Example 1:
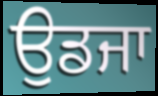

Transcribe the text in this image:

ਉਡਜਾ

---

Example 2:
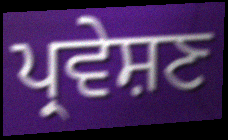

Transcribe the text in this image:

ਪ੍ਰਵੇਸ਼ਣ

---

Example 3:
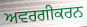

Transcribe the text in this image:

ਅਵਰਗੀਕਰਨ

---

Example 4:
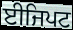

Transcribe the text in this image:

ਈਜਿਪਟ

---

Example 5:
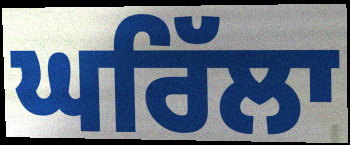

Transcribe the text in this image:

ਘਰਿੱਲਾ